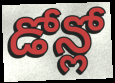
డోన్లో